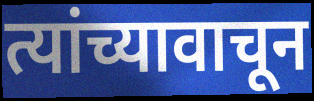
त्यांच्यावाचून